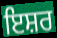
ਇਸ਼ਰ